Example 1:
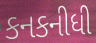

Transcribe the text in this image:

કનકનીધી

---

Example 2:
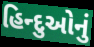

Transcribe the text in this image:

હિન્દુઓનું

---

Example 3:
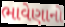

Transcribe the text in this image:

ભાવેણાનો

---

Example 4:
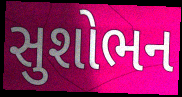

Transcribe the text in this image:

સુશોભન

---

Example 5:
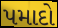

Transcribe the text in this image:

પમાદો